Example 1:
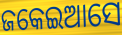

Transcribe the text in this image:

ଜକେଇଆସେ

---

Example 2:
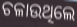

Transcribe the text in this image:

ଚଳାଉଥିଲେ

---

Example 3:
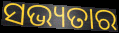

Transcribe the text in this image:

ସଭ୍ୟତାର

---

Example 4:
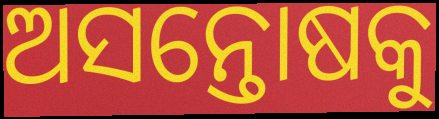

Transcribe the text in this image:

ଅସନ୍ତୋଷକୁ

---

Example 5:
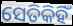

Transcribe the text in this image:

ସେତିକିହିଁ